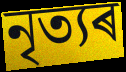
নৃত্যৰ